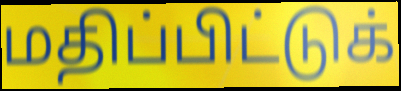
மதிப்பிட்டுக்